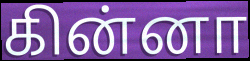
கின்னா